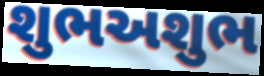
શુભઅશુભ